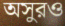
অসুরও